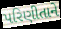
પરિણીતાને